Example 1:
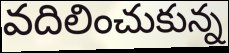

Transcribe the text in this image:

వదిలించుకున్న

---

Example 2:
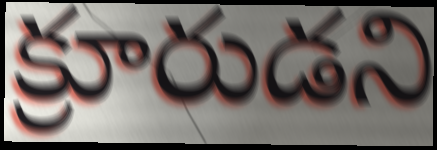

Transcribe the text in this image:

క్రూరుడని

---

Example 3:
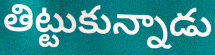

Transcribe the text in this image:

తిట్టుకున్నాడు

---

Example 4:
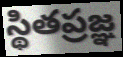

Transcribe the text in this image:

స్థితప్రజ్ఞ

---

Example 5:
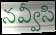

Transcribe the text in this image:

నవ్వీసి